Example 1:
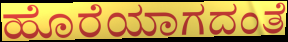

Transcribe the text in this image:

ಹೊರೆಯಾಗದಂತೆ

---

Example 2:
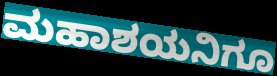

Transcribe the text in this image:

ಮಹಾಶಯನಿಗೂ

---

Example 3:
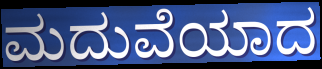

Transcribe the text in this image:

ಮದುವೆಯಾದ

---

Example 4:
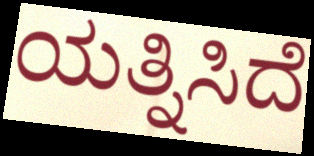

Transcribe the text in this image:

ಯತ್ನಿಸಿದೆ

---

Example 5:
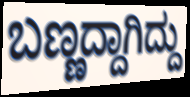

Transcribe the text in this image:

ಬಣ್ಣದ್ದಾಗಿದ್ದು